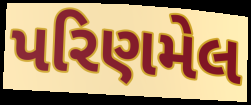
પરિણમેલ